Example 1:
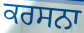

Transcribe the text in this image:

ਕਰਸਨਾ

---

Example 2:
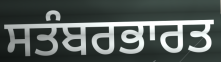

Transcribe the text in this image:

ਸਤੰਬਰਭਾਰਤ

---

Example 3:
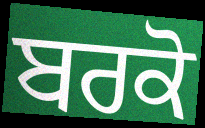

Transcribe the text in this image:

ਬਰਕੋ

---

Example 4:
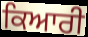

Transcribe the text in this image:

ਕਿਆਰੀ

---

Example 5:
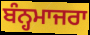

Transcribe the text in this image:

ਬੰਨ੍ਹਮਾਜਰਾ